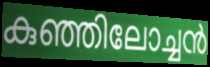
കുഞ്ഞിലോച്ചൻ